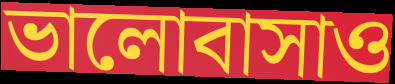
ভালোবাসাও